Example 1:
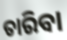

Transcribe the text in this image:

ତାରିବା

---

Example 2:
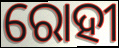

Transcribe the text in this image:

ରୋହୀ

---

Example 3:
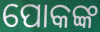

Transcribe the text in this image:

ପୋକଙ୍କ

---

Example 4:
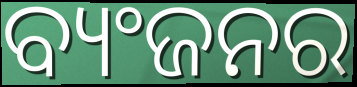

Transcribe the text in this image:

ବ୍ୟଂଜନର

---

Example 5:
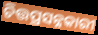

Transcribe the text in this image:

ଚିତ୍ତପ୍ରସନ୍ନକାରୀ